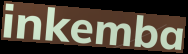
inkemba